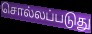
சொல்லப்படுது